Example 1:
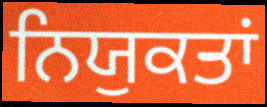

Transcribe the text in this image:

ਨਿਯੁਕਤਾਂ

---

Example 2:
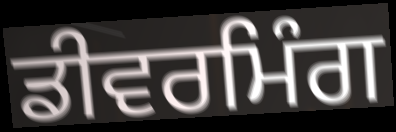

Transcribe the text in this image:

ਡੀਵਰਮਿੰਗ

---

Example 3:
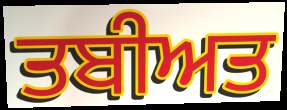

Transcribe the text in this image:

ਤਬੀਅਤ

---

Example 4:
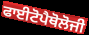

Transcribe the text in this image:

ਫਾਈਟੋਪੈਥੋਲੋਜੀ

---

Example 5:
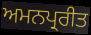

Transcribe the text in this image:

ਅਮਨਪ੍ਰਰੀਤ